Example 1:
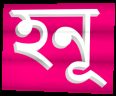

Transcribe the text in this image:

হনূ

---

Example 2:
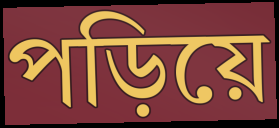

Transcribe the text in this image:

পড়িয়ে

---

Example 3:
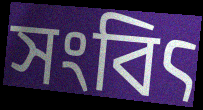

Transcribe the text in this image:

সংবিৎ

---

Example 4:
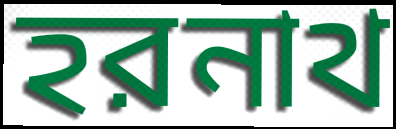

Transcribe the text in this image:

হরনাথ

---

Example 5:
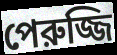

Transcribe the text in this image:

পেরুজ্জি